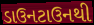
ડાઉનટાઉનથી